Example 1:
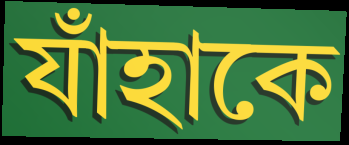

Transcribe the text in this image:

যাঁহাকে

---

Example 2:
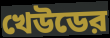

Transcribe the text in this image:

খেউডের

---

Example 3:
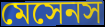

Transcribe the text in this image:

মেসেনস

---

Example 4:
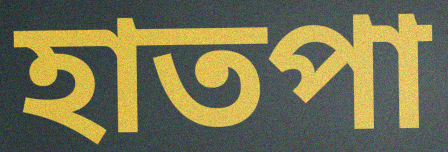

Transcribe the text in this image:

হাতপা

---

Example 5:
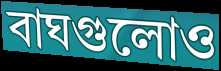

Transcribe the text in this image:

বাঘগুলোও